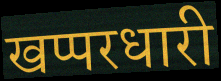
खप्परधारी